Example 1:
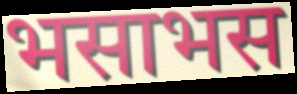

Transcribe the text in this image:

भसाभस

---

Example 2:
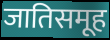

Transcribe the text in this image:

जातिसमूह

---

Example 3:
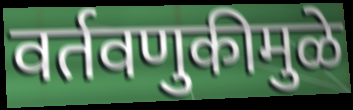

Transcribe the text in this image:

वर्तवणुकीमुळे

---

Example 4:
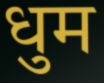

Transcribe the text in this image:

धुम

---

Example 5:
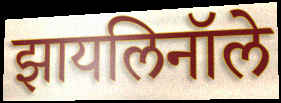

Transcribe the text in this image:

झायलिनॉले